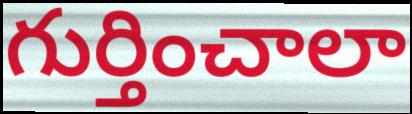
గుర్తించాలా